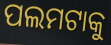
ପଲମଟାକୁ